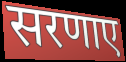
सरणाए